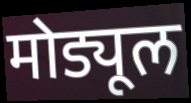
मोड्यूल